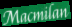
Macmilan